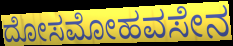
ದೋಸಮೋಹವಸೇನ